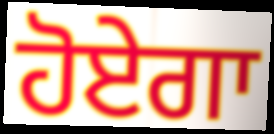
ਹੋਏਗਾ